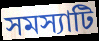
সমস্যাটি